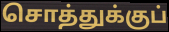
சொத்துக்குப்